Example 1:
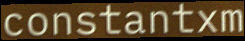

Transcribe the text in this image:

constantxm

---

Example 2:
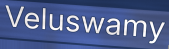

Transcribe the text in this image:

Veluswamy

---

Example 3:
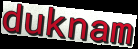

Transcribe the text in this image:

duknam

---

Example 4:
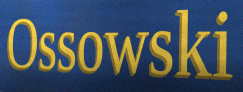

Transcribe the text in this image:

Ossowski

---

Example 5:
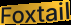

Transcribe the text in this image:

Foxtail